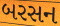
બરસન